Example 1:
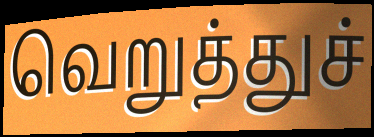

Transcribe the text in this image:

வெறுத்துச்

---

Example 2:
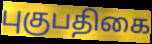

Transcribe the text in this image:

புகுபதிகை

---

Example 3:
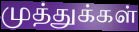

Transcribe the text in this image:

முத்துக்கள்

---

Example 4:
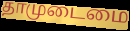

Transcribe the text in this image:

தாமுடைமை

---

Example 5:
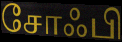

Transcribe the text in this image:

சோஃபி